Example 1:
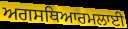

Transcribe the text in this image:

ਅਗਸਥਿਆਰਮਲਾਈ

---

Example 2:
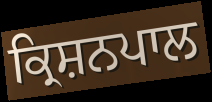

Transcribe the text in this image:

ਕ੍ਰਿਸ਼ਨਪਾਲ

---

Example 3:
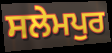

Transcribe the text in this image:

ਸਲੇਮਪੁਰ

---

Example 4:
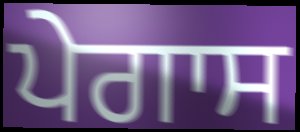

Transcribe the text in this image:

ਪੇਗਾਸ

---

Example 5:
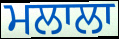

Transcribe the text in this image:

ਮਲਾਲਾ